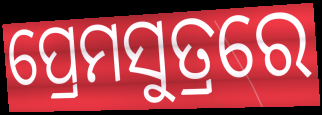
ପ୍ରେମସୁତ୍ରରେ